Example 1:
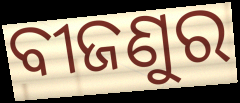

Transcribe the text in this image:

ବୀଜଣୁର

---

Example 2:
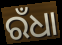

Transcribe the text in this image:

ରଁଧା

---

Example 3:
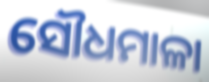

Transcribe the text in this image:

ସୌଧମାଳା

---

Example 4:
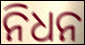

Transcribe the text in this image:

ନିଧନ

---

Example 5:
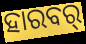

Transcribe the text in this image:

ହାରବର୍